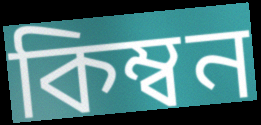
কিম্বন